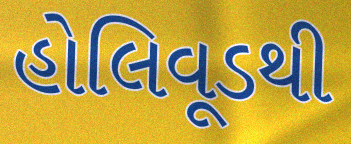
હોલિવૂડથી